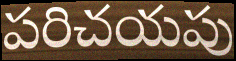
పరిచయపు